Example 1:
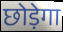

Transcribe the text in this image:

छोड़ेगा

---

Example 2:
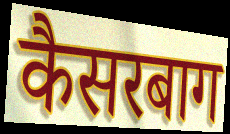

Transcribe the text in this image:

कैसरबाग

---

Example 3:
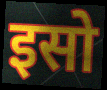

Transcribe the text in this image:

इसो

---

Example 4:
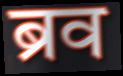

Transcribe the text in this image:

ब्रव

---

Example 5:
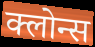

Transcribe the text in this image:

क्लोन्स